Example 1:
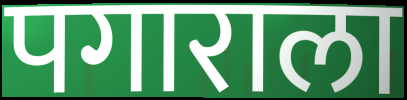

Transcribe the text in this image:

पगाराला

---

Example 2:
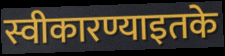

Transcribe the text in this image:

स्वीकारण्याइतके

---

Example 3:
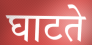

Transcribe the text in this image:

घाटते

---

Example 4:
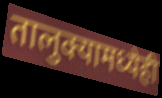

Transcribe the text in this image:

तालुक्यामध्येही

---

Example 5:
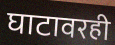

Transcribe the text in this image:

घाटावरही